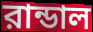
রান্ডাল